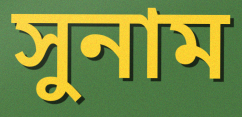
সুনাম